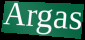
Argas